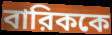
বারিককে